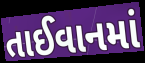
તાઈવાનમાં